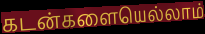
கடன்களையெல்லாம்